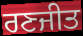
ਰਣਜੀਤ